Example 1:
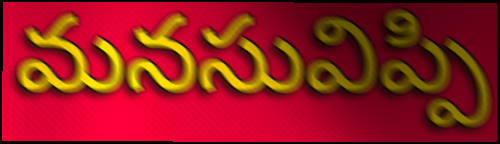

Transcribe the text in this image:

మనసువిప్పి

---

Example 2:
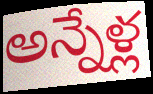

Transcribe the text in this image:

అన్నేళ్ల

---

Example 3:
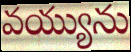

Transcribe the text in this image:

వయ్యును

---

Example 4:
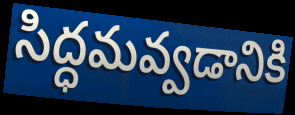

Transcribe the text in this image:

సిద్ధమవ్వడానికి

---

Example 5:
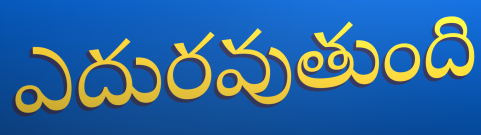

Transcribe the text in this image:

ఎదురవుతుంది